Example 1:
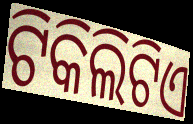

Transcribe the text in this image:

ଟିକିଲିଟିଏ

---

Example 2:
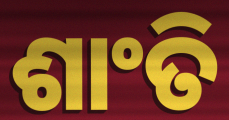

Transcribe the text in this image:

ଶାଂତି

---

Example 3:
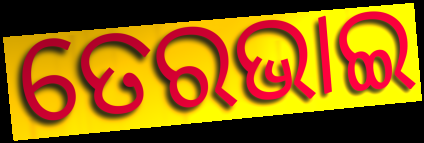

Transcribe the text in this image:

ତେରଭାଇ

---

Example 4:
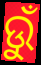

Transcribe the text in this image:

ଉୁଁ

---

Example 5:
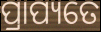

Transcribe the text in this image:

ପ୍ରାପ୍ୟତେ